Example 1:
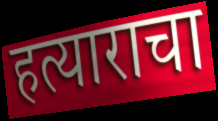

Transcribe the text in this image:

हत्याराचा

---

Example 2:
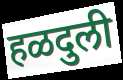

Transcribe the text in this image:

हळदुली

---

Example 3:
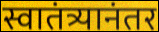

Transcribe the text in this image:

स्वातंत्र्यानंतर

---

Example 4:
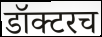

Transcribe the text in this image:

डॉक्टरच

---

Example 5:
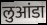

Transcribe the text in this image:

लुआंडा